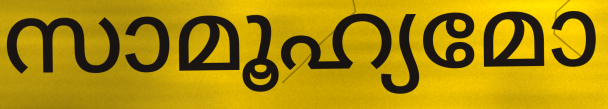
സാമൂഹ്യമോ